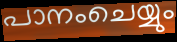
പാനംചെയ്യും